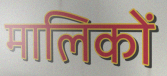
मालिकों